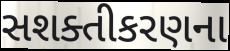
સશક્તીકરણના